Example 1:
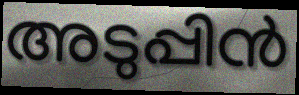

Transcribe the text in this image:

അടുപ്പിൻ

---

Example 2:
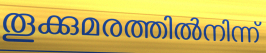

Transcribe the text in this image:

തൂക്കുമരത്തിൽനിന്ന്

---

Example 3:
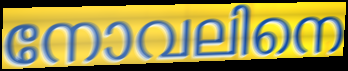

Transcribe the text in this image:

നോവലിനെ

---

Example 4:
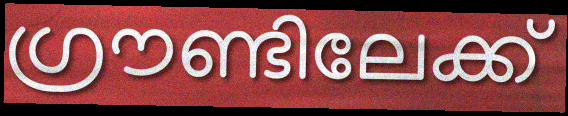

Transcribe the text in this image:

ഗ്രൗണ്ടിലേക്ക്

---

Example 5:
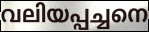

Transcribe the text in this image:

വലിയപ്പച്ചനെ